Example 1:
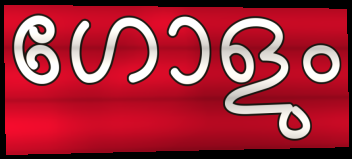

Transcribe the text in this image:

ഗോളും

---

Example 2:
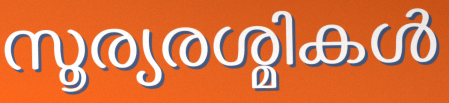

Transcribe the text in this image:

സൂര്യരശ്മികൾ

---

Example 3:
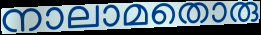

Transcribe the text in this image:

നാലാമതൊരു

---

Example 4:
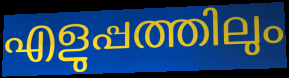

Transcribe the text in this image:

എളുപ്പത്തിലും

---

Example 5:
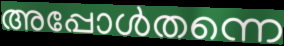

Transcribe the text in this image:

അപ്പോൾതന്നെ